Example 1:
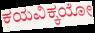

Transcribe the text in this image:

ಕಯವಿಕ್ಕಯೋ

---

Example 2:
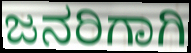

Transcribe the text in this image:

ಜನರಿಗಾಗಿ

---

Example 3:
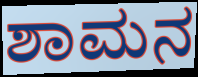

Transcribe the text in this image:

ಶಾಮನ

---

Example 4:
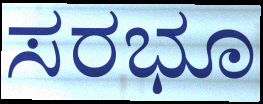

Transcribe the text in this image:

ಸರಭೂ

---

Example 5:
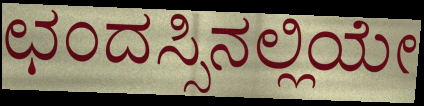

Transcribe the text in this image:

ಛಂದಸ್ಸಿನಲ್ಲಿಯೇ